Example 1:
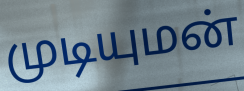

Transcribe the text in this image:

முடியுமன்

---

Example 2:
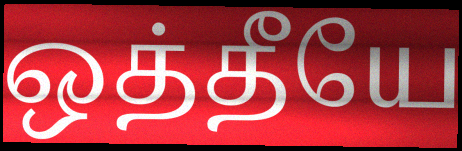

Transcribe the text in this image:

ஒத்தீயே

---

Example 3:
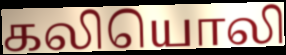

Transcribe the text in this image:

கலியொலி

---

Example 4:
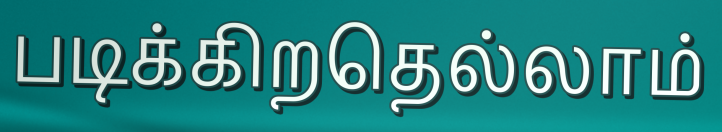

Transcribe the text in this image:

படிக்கிறதெல்லாம்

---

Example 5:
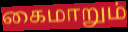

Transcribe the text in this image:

கைமாறும்